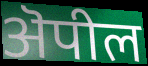
ऄपील